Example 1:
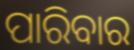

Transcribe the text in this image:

ପାରିବାର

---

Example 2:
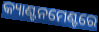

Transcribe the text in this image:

କ୍ୟାଣ୍ଟନମେଣ୍ଟରେ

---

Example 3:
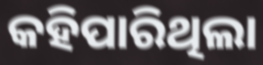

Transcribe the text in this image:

କହିପାରିଥିଲା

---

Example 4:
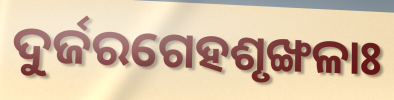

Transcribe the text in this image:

ଦୁର୍ଜରଗେହଶୃଙ୍ଖଳାଃ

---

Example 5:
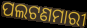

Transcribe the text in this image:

ପଲଟଣମାରୀ